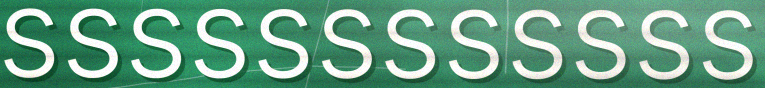
ssssssssssss